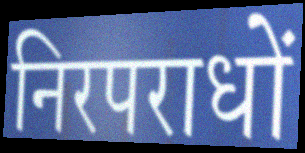
निरपराधों